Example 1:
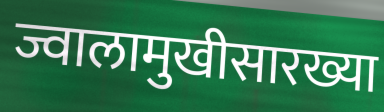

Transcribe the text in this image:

ज्वालामुखीसारख्या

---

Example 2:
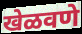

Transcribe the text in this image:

खेळवणे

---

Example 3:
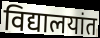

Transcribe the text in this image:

विद्यालयांत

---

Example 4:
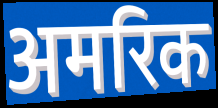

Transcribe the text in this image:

अमरिक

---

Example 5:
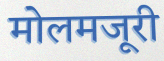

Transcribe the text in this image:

मोलमजूरी